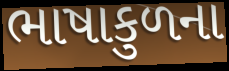
ભાષાકુળના